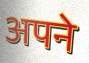
अपने